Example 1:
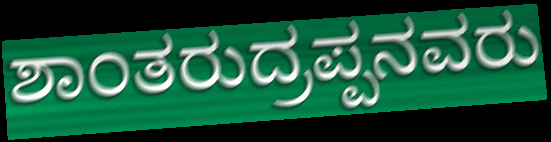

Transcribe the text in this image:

ಶಾಂತರುದ್ರಪ್ಪನವರು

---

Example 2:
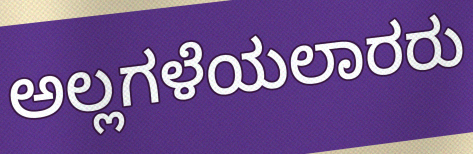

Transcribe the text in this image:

ಅಲ್ಲಗಳೆಯಲಾರರು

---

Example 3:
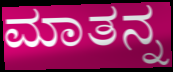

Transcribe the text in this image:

ಮಾತನ್ನ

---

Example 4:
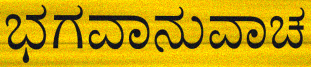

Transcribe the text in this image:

ಭಗವಾನುವಾಚ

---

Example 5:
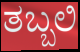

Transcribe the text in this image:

ತಬ್ಬಲಿ